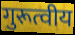
गुरूत्वीय